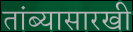
तांब्यासारखी